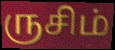
ருசிம்